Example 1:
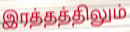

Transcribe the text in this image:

இரத்தத்திலும்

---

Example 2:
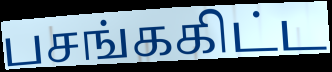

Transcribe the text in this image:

பசங்ககிட்ட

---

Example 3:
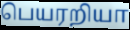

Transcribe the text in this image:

பெயரறியா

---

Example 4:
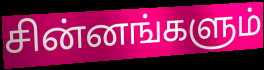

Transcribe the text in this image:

சின்னங்களும்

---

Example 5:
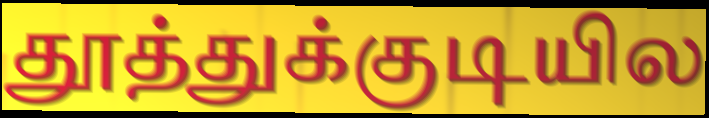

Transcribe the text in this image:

தூத்துக்குடியில